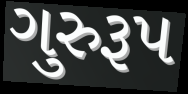
ગુરુરૂપ